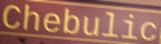
Chebulic